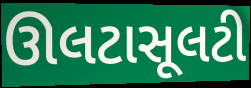
ઊલટાસૂલટી